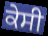
ਕੇਸੀ